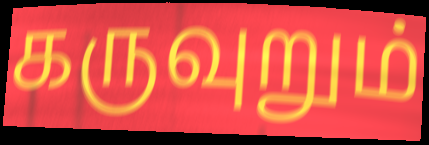
கருவுறும்